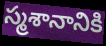
స్మశానానికి